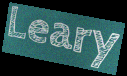
Leary